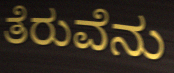
ತೆರುವೆನು